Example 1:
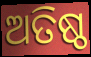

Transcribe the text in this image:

ଅତିଷ୍ଠ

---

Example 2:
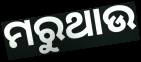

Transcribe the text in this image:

ମରୁଥାଉ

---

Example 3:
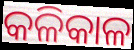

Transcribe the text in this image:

କଳିକାଳ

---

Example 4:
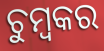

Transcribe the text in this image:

ଚୁମ୍ବକର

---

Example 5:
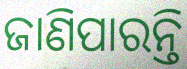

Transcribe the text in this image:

ଜାଣିପାରନ୍ତି